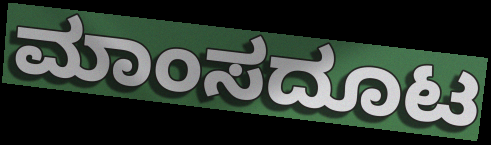
ಮಾಂಸದೂಟ